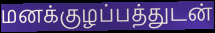
மனக்குழப்பத்துடன்